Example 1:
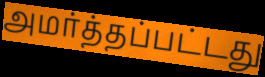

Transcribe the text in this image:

அமர்த்தப்பட்டது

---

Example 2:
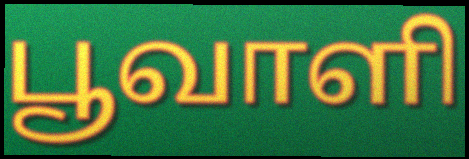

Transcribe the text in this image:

பூவாளி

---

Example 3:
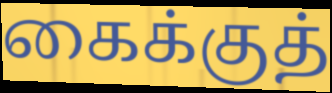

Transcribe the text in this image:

கைக்குத்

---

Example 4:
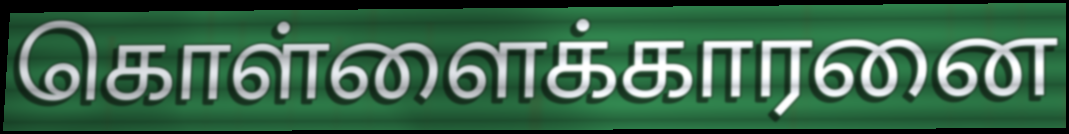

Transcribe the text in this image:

கொள்ளைக்காரனை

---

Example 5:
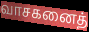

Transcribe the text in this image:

வாசகனைத்